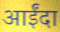
आईंदा